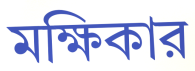
মক্ষিকার